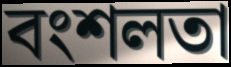
বংশলতা